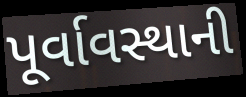
પૂર્વાવસ્થાની